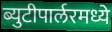
ब्युटीपार्लरमध्ये